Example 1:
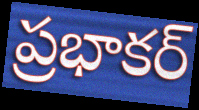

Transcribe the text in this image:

ప్రభాకర్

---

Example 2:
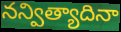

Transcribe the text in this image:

నన్విత్యాదినా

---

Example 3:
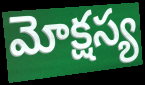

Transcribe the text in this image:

మోక్షస్య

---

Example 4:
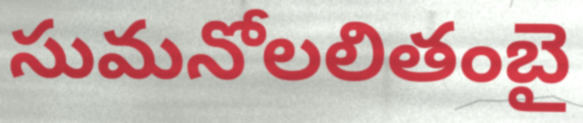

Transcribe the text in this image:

సుమనోలలితంబై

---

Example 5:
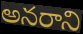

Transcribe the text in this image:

అనరాని